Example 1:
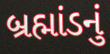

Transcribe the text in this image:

બ્રહ્માંડનું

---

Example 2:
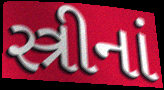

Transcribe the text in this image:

સ્ત્રીનાં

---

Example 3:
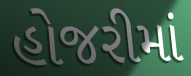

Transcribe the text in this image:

હોજરીમાં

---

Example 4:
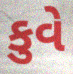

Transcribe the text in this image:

કુવે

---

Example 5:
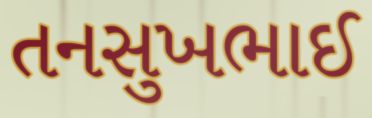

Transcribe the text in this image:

તનસુખભાઈ